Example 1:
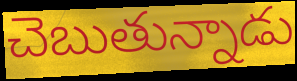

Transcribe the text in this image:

చెబుతున్నాడు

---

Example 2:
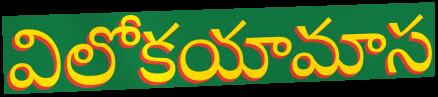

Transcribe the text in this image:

విలోకయామాస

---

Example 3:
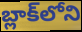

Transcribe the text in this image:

బ్లాక్‌లోని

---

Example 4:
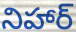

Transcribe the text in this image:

నిహార్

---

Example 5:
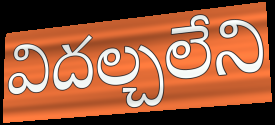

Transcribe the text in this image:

విదల్చలేని